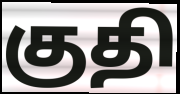
குதி